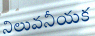
నిలువనీయక